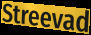
Streevad